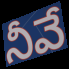
నీవే